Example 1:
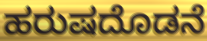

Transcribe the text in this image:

ಹರುಷದೊಡನೆ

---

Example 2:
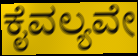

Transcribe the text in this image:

ಕೈವಲ್ಯವೇ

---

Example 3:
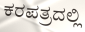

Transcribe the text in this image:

ಕರಪತ್ರದಲ್ಲಿ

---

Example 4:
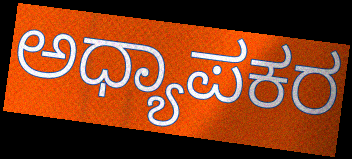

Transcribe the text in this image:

ಅಧ್ಯಾಪಕರ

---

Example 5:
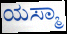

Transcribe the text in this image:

ಯಸ್ಮಾ